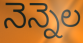
నెన్నెల